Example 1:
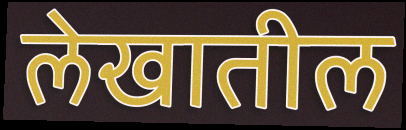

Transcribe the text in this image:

लेखातील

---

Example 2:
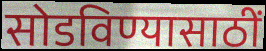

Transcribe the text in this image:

सोडविण्यासाठीं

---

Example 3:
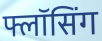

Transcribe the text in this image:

फ्लॉसिंग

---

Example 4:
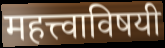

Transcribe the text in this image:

महत्त्वाविषयी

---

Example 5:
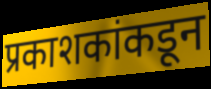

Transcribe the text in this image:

प्रकाशकांकडून